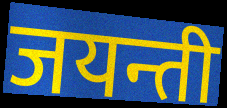
जयन्ती